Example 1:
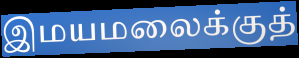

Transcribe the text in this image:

இமயமலைக்குத்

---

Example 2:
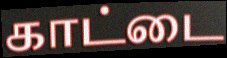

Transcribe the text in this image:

காட்டை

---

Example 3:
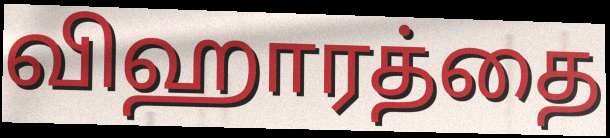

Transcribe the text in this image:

விஹாரத்தை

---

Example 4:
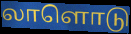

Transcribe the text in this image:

லாளொடு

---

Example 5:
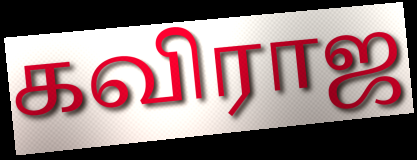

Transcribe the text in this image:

கவிராஜ